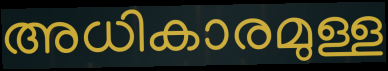
അധികാരമുള്ള